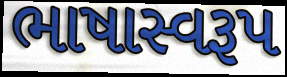
ભાષાસ્વરૂપ